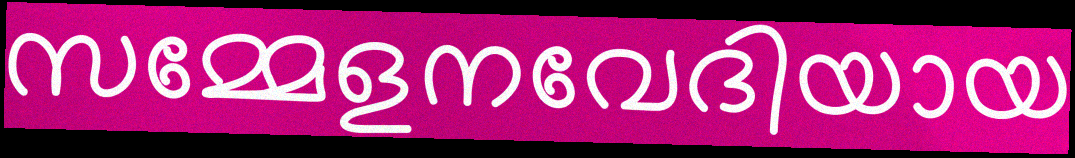
സമ്മേളനവേദിയായ